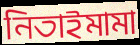
নিতাইমামা